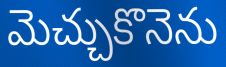
మెచ్చుకొనెను